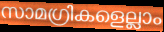
സാമഗ്രികളെല്ലാം